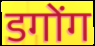
डगोंग